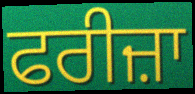
ਫਰੀਜ਼ਾ